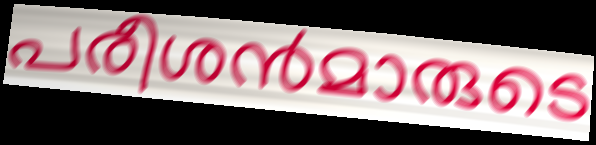
പരീശൻമാരുടെ